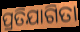
ପ୍ରତିଯାଗିତା